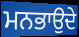
ਮਨਭਾਉਦੇ